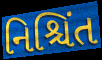
નિશ્ચિંત